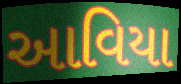
આવિયા